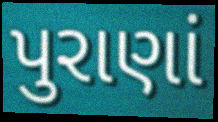
પુરાણાં